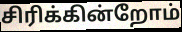
சிரிக்கின்றோம்